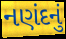
નણંદનું